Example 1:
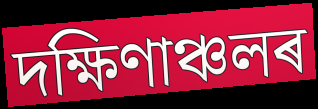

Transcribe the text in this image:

দক্ষিণাঞ্চলৰ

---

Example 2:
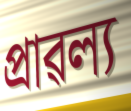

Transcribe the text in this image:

প্ৰাৱল্য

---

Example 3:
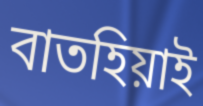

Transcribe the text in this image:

বাতহিয়াই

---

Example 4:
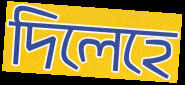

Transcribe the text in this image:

দিলেহে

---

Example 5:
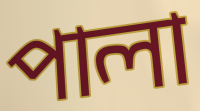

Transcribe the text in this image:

পালা